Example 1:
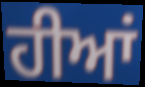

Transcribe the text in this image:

ਹੀਆਂ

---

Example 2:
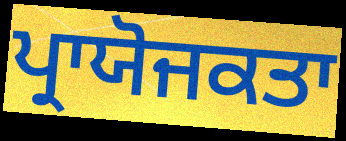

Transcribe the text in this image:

ਪ੍ਰਾਯੋਜਕਤਾ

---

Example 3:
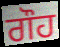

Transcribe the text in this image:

ਗੌਹ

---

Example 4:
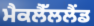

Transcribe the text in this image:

ਮੈਕਲੈੱਲਲੈਂਡ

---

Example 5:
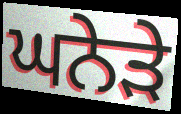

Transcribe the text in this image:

ਘਨੇੜੇ